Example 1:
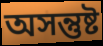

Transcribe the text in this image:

অসন্তুষ্ট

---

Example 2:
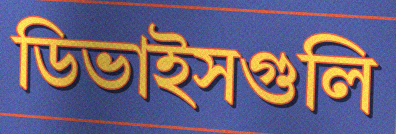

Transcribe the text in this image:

ডিভাইসগুলি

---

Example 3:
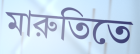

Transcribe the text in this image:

মারুতিতে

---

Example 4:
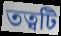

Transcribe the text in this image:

তত্বটি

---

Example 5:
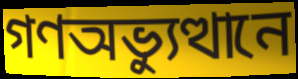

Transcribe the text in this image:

গণঅভ্যুত্থানে